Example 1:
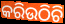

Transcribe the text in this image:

କରିଉଠିଚି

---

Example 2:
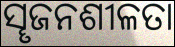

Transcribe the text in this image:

ସୄଜନଶୀଳତା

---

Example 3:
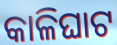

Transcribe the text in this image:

କାଳିଘାଟ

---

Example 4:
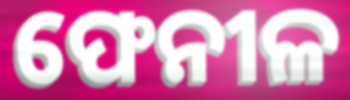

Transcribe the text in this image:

ଫେନୀଳ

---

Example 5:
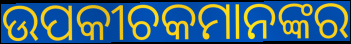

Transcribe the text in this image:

ଉପକୀଚକମାନଙ୍କର